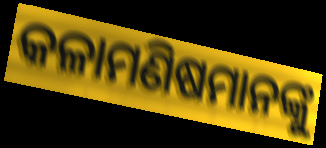
କଳାମଣିଷମାନଙ୍କୁ